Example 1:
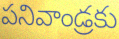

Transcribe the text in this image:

పనివాండ్రకు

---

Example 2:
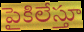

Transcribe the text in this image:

పైకిలేస్తూ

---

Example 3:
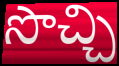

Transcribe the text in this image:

సొచ్చి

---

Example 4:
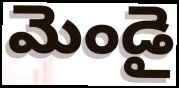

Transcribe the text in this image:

మెండై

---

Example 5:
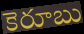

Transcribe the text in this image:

కెరూబు